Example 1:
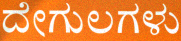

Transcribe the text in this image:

ದೇಗುಲಗಳು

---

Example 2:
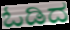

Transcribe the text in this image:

ಓಡಿದ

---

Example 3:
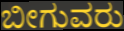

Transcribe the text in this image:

ಬೀಗುವರು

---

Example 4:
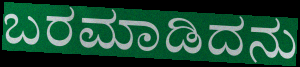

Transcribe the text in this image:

ಬರಮಾಡಿದನು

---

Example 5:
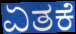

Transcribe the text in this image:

ಏತಕೆ